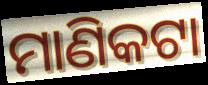
ମାଣିକଟା